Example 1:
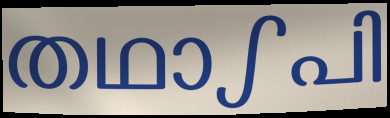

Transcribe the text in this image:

തഥാഽപി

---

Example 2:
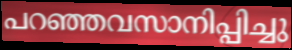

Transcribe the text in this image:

പറഞ്ഞവസാനിപ്പിച്ചു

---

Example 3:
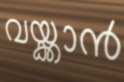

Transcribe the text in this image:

വയ്ക്കാൻ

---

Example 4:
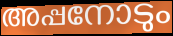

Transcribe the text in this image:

അപ്പനോടും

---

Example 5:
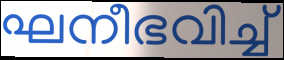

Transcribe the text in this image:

ഘനീഭവിച്ച്